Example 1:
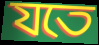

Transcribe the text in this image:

যতে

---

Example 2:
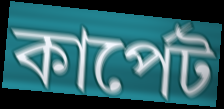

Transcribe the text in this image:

কাৰ্পেট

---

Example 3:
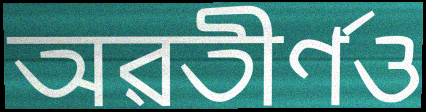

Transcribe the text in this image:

অৱতীৰ্ণও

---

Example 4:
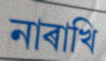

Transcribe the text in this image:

নাৰাখি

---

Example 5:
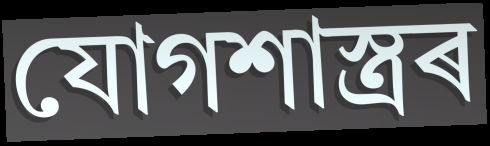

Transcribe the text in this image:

যোগশাস্ত্ৰৰ